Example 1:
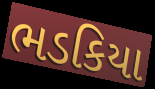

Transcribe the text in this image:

ભડકિયા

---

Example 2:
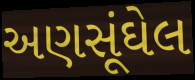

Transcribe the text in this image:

અણસૂંઘેલ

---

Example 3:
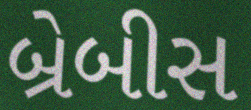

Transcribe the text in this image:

બ્રેબીસ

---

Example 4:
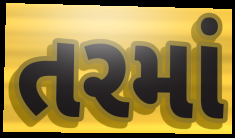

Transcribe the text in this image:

તરમાં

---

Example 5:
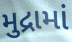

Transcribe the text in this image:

મુદ્રામાં